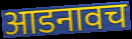
आडनावच